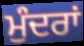
ਮੁੰਦਰਾਂ